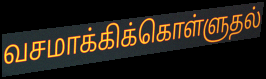
வசமாக்கிக்கொள்ளுதல்